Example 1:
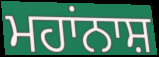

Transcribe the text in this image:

ਮਹਾਂਨਾਸ਼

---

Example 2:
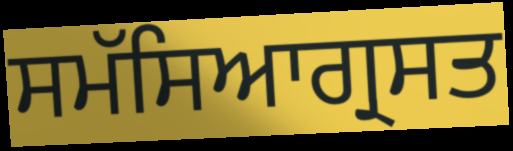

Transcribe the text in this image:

ਸਮੱਸਿਆਗ੍ਰਸਤ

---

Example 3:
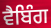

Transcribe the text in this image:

ਵੈਬਿੰਗ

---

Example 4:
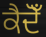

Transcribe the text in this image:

ਕੈਦੋਁ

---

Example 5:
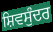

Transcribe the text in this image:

ਸ਼ਿਵਸੁੰਦਰ